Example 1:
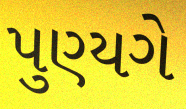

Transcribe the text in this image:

પુણ્યગે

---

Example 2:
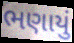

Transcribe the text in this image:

ભણાયું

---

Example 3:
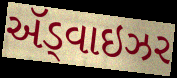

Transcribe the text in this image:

ઍડ્વાઇઝર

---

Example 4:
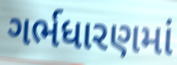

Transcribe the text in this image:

ગર્ભધારણમાં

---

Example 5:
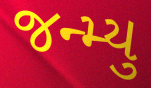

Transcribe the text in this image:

જન્મ્યુ